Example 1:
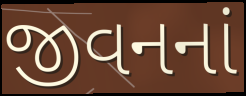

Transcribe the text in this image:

જીવનનાં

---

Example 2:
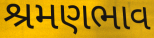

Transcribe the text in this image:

શ્રમણભાવ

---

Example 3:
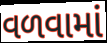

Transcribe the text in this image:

વળવામાં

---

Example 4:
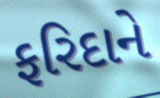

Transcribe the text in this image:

ફરિદાને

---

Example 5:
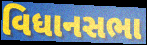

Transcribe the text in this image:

વિધાનસભા